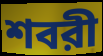
শবরী